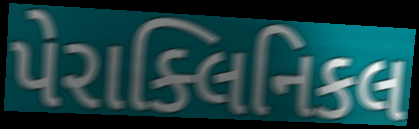
પેરાક્લિનિકલ